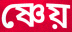
ষ্ণেয়